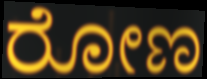
ರೋಣ